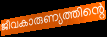
ജീവകാരുണ്യത്തിന്റെ